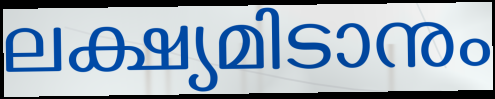
ലക്ഷ്യമിടാനും